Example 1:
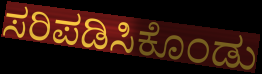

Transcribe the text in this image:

ಸರಿಪಡಿಸಿಕೊಂಡು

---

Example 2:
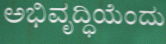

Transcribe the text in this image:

ಅಭಿವೃದ್ಧಿಯೆಂದು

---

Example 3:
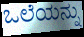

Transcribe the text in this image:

ಒಲೆಯನ್ನು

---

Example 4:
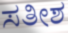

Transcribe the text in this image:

ಸತೀಶ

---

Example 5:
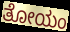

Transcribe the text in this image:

ತೋಯಂ